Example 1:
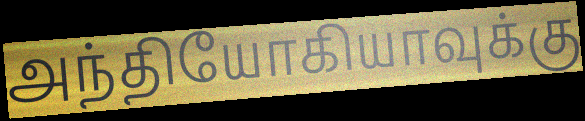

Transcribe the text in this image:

அந்தியோகியாவுக்கு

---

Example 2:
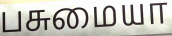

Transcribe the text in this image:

பசுமையா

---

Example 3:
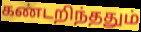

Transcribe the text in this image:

கண்டறிந்ததும்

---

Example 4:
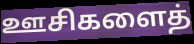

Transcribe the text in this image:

ஊசிகளைத்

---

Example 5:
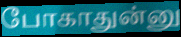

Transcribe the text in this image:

போகாதுன்னு